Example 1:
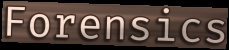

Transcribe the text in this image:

Forensics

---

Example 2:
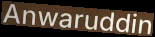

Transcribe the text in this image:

Anwaruddin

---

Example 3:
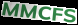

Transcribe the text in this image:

MMCFS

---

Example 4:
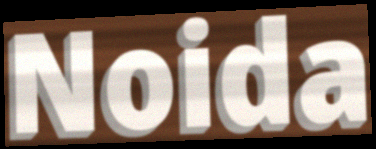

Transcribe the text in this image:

Noida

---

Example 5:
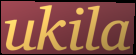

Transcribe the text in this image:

ukila